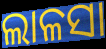
ଲାଳସା